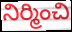
నిర్మించి